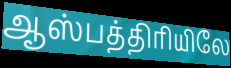
ஆஸ்பத்திரியிலே